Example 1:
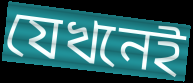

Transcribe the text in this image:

যেখনেই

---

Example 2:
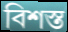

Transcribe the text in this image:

বিশস্ত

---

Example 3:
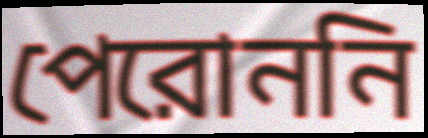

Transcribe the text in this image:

পেরোননি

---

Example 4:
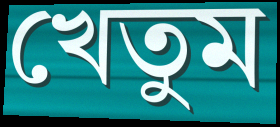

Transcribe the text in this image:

খেতুম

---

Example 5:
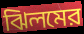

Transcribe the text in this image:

ঝিলমের